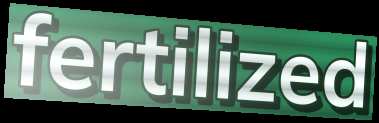
fertilized